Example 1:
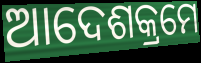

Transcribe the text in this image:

ଆଦେଶକ୍ରମେ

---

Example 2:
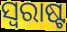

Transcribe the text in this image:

ସ୍ୱରାଷ୍ଟ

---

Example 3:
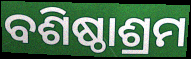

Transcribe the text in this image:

ବଶିଷ୍ଠାଶ୍ରମ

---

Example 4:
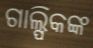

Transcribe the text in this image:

ଗାଲ୍ପିକଙ୍କ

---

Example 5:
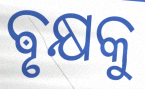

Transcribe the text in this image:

ଵୃକ୍ଷକୁ